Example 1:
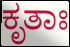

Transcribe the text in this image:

ಕೃತಾಃ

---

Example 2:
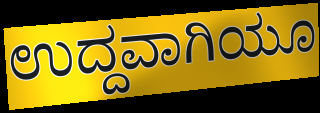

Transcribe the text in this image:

ಉದ್ದವಾಗಿಯೂ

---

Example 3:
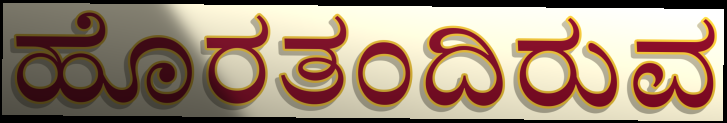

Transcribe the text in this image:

ಹೊರತಂದಿರುವ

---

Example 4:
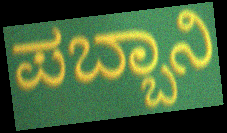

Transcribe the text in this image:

ಪಬ್ಬಾನಿ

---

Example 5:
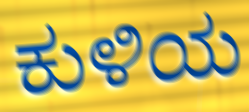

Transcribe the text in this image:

ಕುಳಿಯ